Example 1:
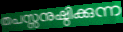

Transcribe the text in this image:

തപസ്സനുഷ്ഠിക്കുന്ന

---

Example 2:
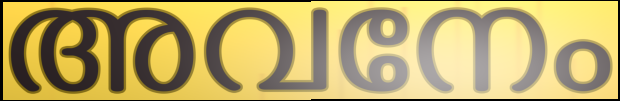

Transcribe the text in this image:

അവനേം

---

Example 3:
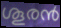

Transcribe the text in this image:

ശൂരൻ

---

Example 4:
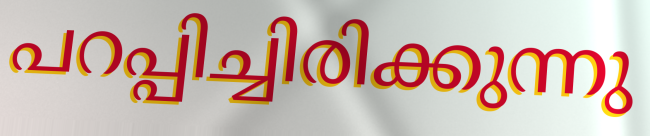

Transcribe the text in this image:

പറപ്പിച്ചിരിക്കുന്നു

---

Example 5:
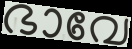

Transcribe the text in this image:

ഭാവേ